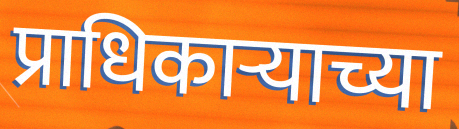
प्राधिकाऱ्याच्या